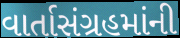
વાર્તાસંગ્રહમાંની